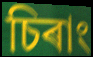
চিৰাং